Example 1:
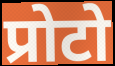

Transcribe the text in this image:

प्रोटो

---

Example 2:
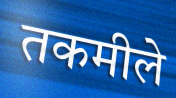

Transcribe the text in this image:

तकमीले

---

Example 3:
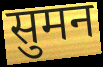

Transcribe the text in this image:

सुमन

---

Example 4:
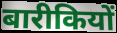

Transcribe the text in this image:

बारीकियों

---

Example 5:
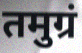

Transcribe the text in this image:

तमुग्रं